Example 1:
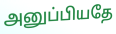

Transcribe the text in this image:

அனுப்பியதே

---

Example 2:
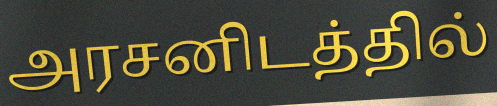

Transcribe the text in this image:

அரசனிடத்தில்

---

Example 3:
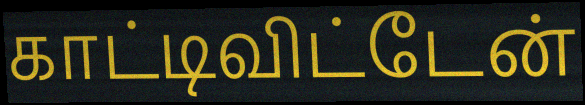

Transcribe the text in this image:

காட்டிவிட்டேன்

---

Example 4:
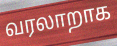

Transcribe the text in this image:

வரலாறாக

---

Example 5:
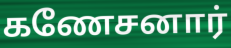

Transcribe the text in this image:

கணேசனார்